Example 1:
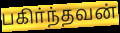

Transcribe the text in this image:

பகிர்ந்தவன்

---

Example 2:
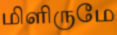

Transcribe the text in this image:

மிளிருமே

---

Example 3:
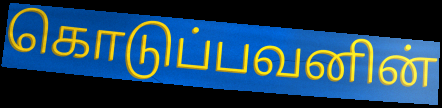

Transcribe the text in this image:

கொடுப்பவனின்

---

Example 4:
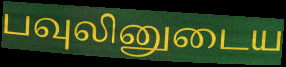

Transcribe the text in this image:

பவுலினுடைய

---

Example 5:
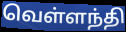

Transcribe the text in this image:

வெள்ளந்தி